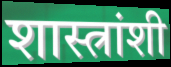
शास्त्रांशी